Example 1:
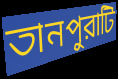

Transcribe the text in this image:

তানপুরাটি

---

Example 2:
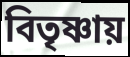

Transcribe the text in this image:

বিতৃষ্ণায়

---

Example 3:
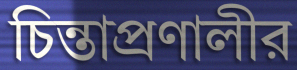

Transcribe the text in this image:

চিন্তাপ্রণালীর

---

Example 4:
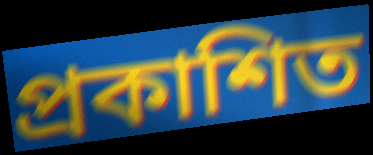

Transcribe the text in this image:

প্রকাশিত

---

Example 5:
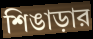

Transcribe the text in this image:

শিঙাড়ার